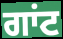
ਗਾਂਟ